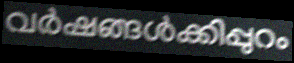
വർഷങ്ങൾക്കിപ്പുറം